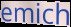
emich